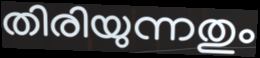
തിരിയുന്നതും